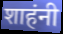
शाहंनी